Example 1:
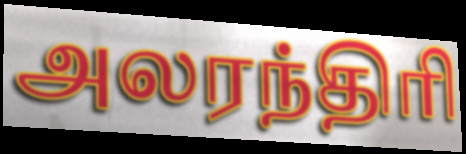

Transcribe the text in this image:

அலரந்திரி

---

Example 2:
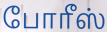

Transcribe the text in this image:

போரீஸ்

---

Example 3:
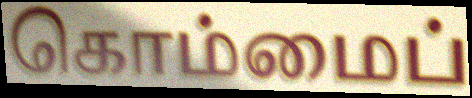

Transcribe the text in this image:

கொம்மைப்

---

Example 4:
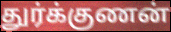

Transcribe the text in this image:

துர்க்குணன்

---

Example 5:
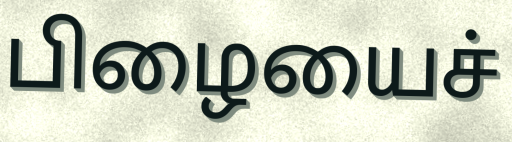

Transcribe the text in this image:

பிழையைச்